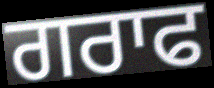
ਗਰਾਫ